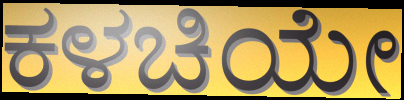
ಕಳಚಿಯೇ